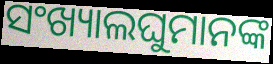
ସଂଖ୍ୟାଲଘୁମାନଙ୍କ